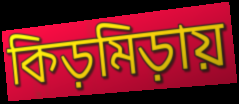
কিড়মিড়ায়